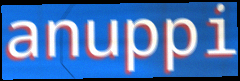
anuppi